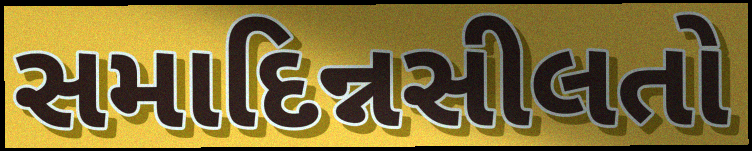
સમાદિન્નસીલતો